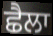
ਛੈਲਾ